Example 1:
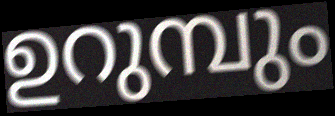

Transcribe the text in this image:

ഉറുമ്പും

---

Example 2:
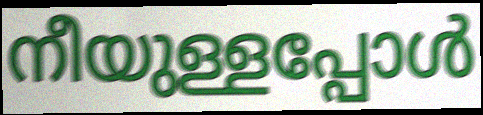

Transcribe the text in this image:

നീയുള്ളപ്പോൾ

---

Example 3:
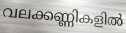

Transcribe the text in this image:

വലക്കണ്ണികളിൽ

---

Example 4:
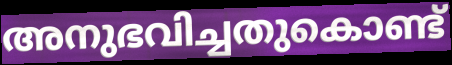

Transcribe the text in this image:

അനുഭവിച്ചതുകൊണ്ട്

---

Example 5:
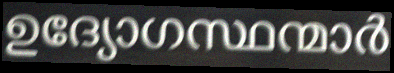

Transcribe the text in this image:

ഉദ്യോഗസ്ഥന്മാർ